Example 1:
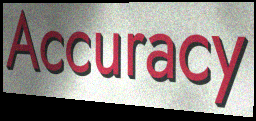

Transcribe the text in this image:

Accuracy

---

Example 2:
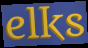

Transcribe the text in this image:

elks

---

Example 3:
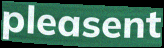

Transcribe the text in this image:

pleasent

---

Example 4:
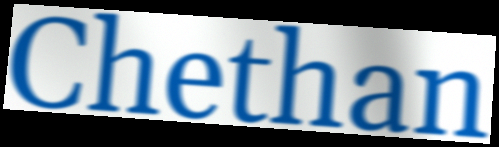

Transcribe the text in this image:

Chethan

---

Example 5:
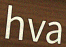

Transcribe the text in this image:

hva